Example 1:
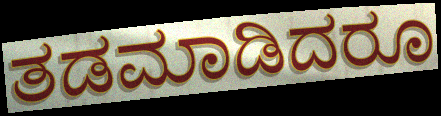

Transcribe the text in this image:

ತಡಮಾಡಿದರೂ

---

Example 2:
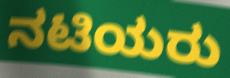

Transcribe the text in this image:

ನಟಿಯರು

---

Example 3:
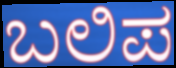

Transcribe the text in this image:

ಬಲಿಪ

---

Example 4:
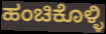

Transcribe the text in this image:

ಹಂಚಿಕೊಳ್ಳಿ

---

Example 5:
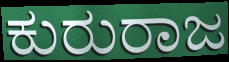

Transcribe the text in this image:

ಕುರುರಾಜ